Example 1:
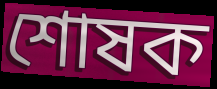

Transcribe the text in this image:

শোষক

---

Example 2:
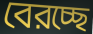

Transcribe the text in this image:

বেরচ্ছে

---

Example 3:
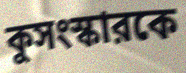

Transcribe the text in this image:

কুসংস্কারকে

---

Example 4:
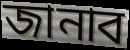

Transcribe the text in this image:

জানাব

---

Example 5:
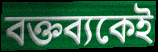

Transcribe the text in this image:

বক্তব্যকেই